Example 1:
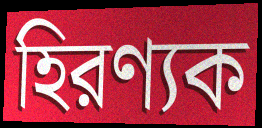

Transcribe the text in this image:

হিরণ্যক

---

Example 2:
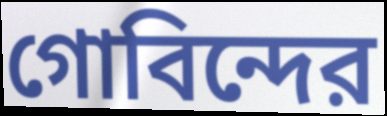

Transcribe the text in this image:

গোবিন্দের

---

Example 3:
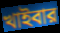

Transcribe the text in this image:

খাইবার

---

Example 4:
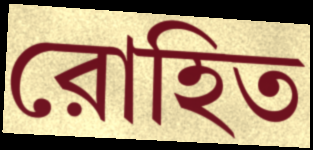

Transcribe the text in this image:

রোহিত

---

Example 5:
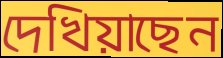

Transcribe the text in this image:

দেখিয়াছেন